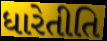
ધારેતીતિ